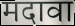
मदावा